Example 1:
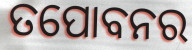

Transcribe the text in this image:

ତପୋବନର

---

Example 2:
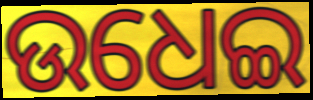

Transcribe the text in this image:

ଉଧେଇ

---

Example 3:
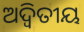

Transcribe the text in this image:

ଅଦ୍ୱିତୀୟ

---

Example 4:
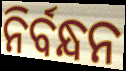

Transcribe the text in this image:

ନିର୍ବନ୍ଧନ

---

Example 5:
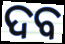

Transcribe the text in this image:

ଦବ